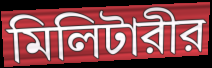
মিলিটারীর